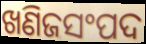
ଖଣିଜସଂପଦ